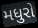
મધુરો